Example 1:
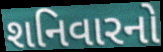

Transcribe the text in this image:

શનિવારનો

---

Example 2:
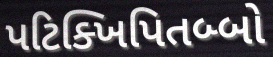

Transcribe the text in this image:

પટિક્ખિપિતબ્બો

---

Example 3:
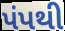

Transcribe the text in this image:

પંપથી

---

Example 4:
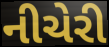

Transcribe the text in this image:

નીચેરી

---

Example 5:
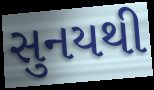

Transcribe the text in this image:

સુનયથી